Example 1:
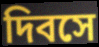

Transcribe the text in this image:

দিবসে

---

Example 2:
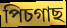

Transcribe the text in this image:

পিচগাছ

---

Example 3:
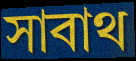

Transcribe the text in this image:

সাবাথ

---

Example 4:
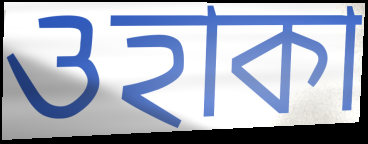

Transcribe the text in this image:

ওহাকা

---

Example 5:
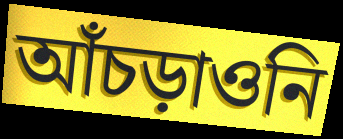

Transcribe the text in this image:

আঁচড়াওনি